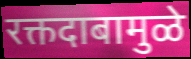
रक्तदाबामुळे